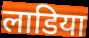
लाडिया